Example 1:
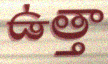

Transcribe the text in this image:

ఉత్తా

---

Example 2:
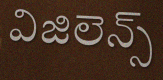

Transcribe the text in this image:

విజిలెన్స్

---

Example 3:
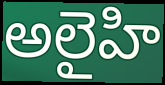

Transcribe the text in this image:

అలైహి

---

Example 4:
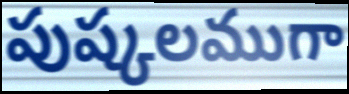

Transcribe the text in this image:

పుష్కలముగా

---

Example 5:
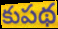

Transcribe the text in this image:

కుపథ